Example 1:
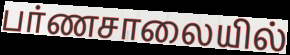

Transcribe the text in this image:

பர்ணசாலையில்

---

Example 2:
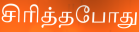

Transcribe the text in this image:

சிரித்தபோது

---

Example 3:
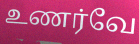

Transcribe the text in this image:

உணர்வே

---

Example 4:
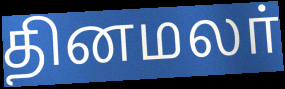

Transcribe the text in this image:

தினமலர்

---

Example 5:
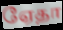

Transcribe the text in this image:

ஏேதா